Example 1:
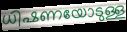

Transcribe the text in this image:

ധിഷണയോടുള്ള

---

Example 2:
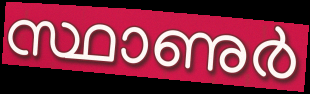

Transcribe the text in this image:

സ്ഥാണുർ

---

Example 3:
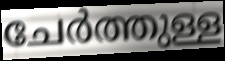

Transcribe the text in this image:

ചേർത്തുള്ള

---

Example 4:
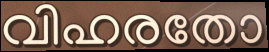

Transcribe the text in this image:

വിഹരതോ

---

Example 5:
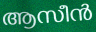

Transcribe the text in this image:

ആസീൻ